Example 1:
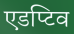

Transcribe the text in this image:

एडप्टिव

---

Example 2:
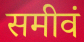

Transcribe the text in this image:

समीवं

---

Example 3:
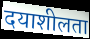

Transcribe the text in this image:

दयाशीलता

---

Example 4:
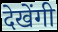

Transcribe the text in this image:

देखेंगी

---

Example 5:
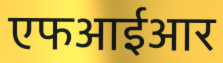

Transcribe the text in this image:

एफआईआर